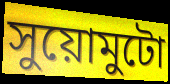
সুয়োমুটো